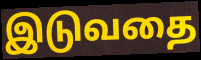
இடுவதை